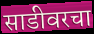
साडीवरचा